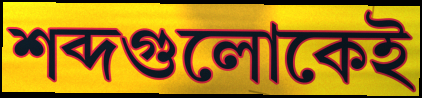
শব্দগুলোকেই